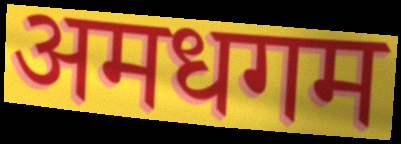
अमधगम